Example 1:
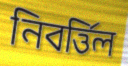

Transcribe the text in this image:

নিবর্ত্তিল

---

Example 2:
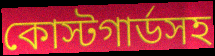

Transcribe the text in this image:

কোস্টগার্ডসহ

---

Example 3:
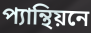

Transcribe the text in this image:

প্যান্থিয়নে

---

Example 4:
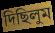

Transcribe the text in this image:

দিছিলুম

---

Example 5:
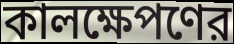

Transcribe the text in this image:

কালক্ষেপণের